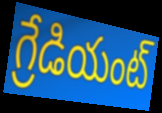
గ్రేడియంట్